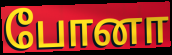
போனா